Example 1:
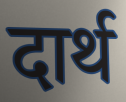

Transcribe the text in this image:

दार्थ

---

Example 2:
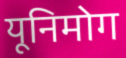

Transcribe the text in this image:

यूनिमोग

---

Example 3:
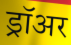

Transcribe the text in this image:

ड्रॉअर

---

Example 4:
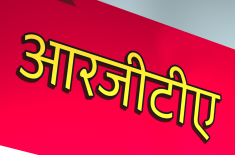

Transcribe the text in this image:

आरजीटीए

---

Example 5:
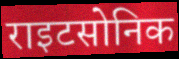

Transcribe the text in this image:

राइटसोनिक